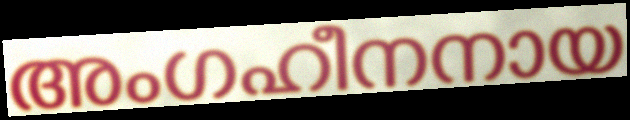
അംഗഹീനനായ